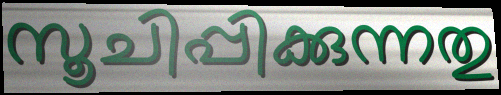
സൂചിപ്പിക്കുന്നതു